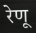
रेणू